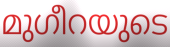
മുഗീറയുടെ